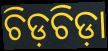
ଚିଡ଼ଚିଡ଼ା